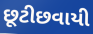
છૂટીછવાયી